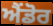
ਐਂਡੋਰ